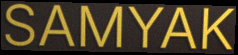
SAMYAK